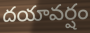
దయావర్షం